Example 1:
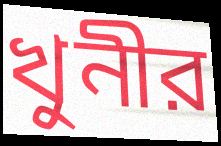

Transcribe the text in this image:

খুনীর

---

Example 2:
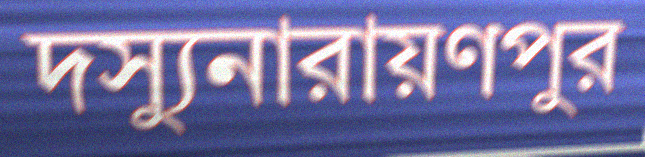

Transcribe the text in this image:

দস্যুনারায়ণপুর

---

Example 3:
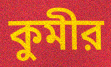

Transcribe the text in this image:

কুমীর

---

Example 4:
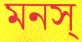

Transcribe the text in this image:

মনস্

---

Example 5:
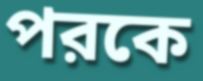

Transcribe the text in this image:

পরকে